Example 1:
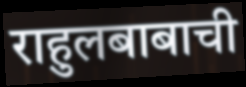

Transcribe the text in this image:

राहुलबाबाची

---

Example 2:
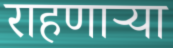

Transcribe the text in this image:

राहणाऱ्या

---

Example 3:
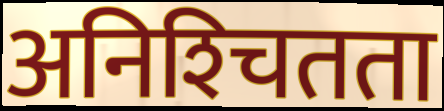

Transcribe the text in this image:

अनिश्‍चितता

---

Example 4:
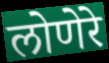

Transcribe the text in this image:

लोणेरे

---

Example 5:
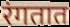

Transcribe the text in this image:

रंगतात